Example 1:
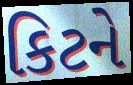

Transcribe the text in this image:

કિટને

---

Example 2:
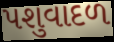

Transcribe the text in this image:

પશુવાદળ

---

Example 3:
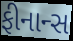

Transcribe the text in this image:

ફીનાન્સ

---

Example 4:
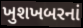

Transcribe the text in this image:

ખુશખબરનાં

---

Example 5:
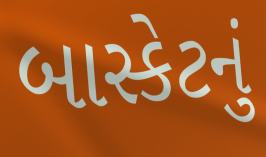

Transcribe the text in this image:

બાસ્કેટનું